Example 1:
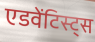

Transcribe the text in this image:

एडवेंटिस्ट्स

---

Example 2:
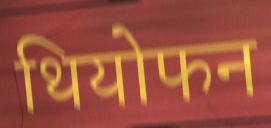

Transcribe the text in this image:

थियोफन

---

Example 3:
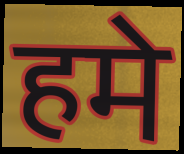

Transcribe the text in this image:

हमे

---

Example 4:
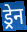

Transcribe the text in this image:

ड्रेन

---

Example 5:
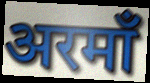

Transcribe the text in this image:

अरमाँ